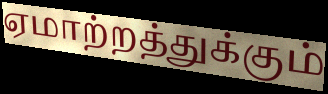
ஏமாற்றத்துக்கும்